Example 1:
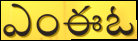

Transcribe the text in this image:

ఎంఈఓ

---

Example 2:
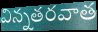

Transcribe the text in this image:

విన్నతరవాత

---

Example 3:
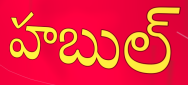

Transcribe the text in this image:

హబుల్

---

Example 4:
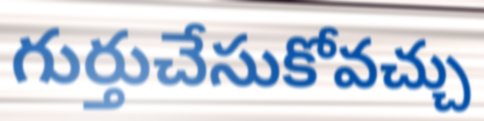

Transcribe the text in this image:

గుర్తుచేసుకోవచ్చు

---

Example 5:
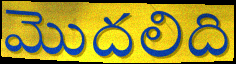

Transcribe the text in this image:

మొదలిది